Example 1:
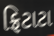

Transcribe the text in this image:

ફ્રિટાટા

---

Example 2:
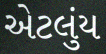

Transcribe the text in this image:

એટલુંય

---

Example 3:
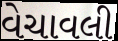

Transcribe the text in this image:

વેચાવલી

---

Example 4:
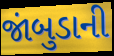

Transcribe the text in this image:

જાંબુડાની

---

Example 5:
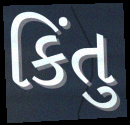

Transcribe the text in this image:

કિંતુ